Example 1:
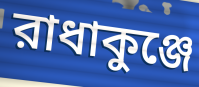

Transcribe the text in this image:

রাধাকুঞ্জে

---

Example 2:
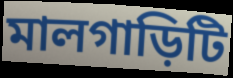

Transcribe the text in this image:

মালগাড়িটি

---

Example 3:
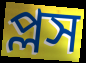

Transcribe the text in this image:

প্লস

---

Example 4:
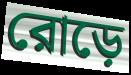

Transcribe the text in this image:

রোড়ে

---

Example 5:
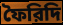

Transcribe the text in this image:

ফৈরিদি